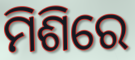
ମିଶିରେ